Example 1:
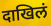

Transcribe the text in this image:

दाखिलं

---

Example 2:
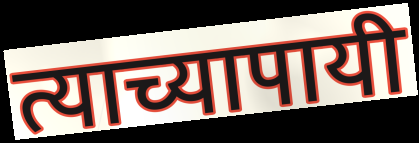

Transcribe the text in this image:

त्याच्यापायी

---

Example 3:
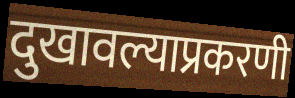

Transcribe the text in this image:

दुखावल्याप्रकरणी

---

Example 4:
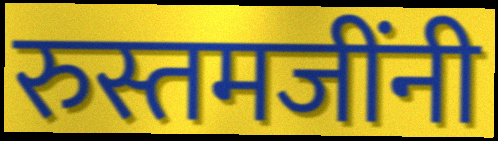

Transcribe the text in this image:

रुस्तमजींनी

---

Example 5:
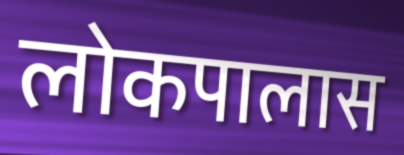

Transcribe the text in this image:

लोकपालास